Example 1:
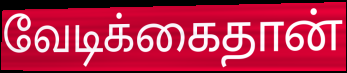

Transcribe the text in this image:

வேடிக்கைதான்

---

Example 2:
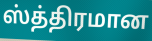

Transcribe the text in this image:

ஸ்த்திரமான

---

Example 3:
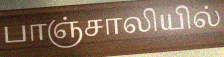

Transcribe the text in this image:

பாஞ்சாலியில்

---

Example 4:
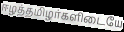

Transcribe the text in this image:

ஈழத்தமிழர்களிடையே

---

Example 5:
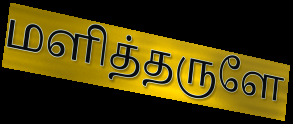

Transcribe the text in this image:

மளித்தருளே